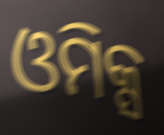
ଓମିକ୍ସ